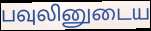
பவுலினுடைய